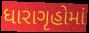
ધારાગૃહોમાં